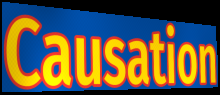
Causation